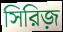
সিরিজ়